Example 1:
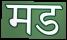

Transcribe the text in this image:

मड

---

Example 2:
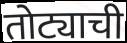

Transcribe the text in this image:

तोट्याची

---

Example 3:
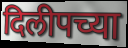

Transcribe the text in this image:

दिलीपच्या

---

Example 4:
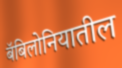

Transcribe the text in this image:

बॅबिलोनियातील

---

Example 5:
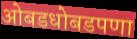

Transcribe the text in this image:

ओबडधोबडपणा